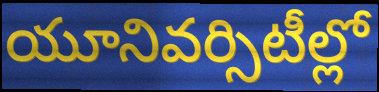
యూనివర్సిటీల్లో